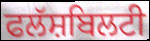
ਫਲੱਸ਼ਬਿਲਟੀ